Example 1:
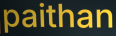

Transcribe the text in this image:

paithan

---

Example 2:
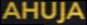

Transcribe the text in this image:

AHUJA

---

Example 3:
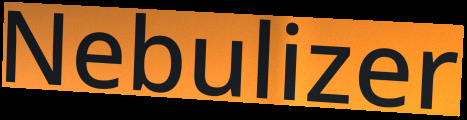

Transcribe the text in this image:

Nebulizer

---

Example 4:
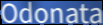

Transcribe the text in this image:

Odonata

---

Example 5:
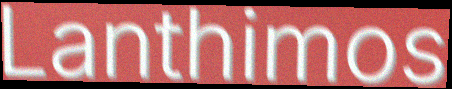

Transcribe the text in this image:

Lanthimos